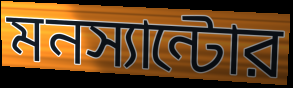
মনস্যান্টোর